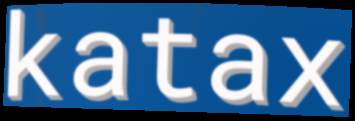
katax